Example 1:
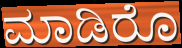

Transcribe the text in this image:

ಮಾಡಿರೊ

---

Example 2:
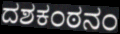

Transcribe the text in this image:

ದಶಕಂಠನಂ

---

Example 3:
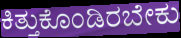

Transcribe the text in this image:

ಕಿತ್ತುಕೊಂಡಿರಬೇಕು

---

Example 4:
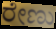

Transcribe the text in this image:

ರೇಣು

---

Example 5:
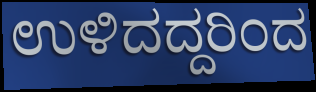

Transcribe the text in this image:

ಉಳಿದದ್ದರಿಂದ